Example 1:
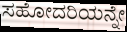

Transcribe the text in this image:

ಸಹೋದರಿಯನ್ನೇ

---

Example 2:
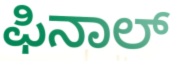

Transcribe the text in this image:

ಫಿನಾಲ್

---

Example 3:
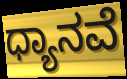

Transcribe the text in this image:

ಧ್ಯಾನವೆ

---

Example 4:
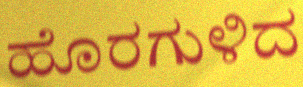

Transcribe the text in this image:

ಹೊರಗುಳಿದ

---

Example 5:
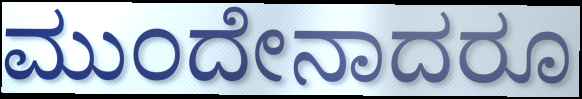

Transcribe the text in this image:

ಮುಂದೇನಾದರೂ